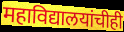
महाविद्यालयांचीही